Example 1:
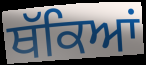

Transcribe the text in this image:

ਥੱਕਿਆਂ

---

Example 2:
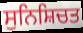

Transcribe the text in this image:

ਸੁਨਿਸ਼ਿਚਤ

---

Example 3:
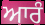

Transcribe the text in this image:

ਆਰੰ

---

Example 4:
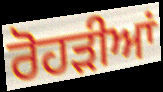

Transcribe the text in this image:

ਰੋਹੜੀਆਂ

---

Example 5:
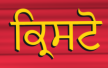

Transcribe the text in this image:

ਕ੍ਰਿਸਟੋ